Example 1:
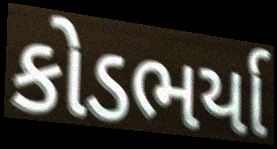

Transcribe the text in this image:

કોડભર્યા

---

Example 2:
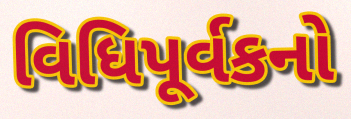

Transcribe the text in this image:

વિધિપૂર્વકનો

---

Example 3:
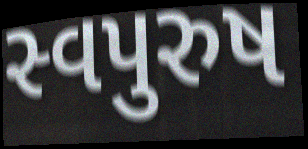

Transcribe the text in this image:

સ્વપુરુષ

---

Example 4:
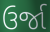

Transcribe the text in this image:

ઉર્જા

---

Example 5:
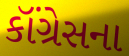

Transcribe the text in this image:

કૉંગ્રેસના